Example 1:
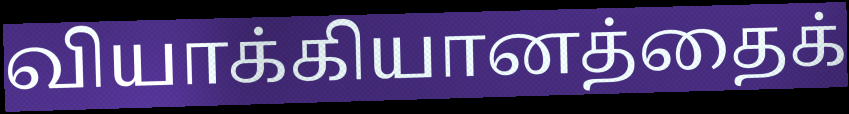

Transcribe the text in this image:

வியாக்கியானத்தைக்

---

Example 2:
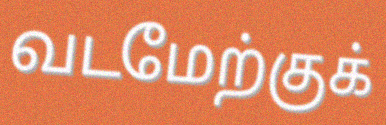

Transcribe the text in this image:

வடமேற்குக்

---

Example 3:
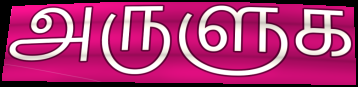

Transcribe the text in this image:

அருளுக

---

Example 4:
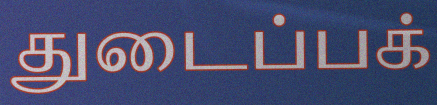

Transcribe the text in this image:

துடைப்பக்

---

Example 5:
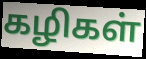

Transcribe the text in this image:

கழிகள்